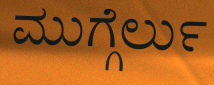
ಮುಗ್ಗೆರ್ಲು